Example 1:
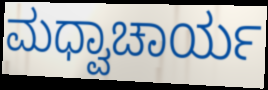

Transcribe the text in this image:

ಮಧ್ವಾಚಾರ್ಯ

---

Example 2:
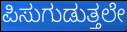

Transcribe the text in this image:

ಪಿಸುಗುಡುತ್ತಲೇ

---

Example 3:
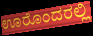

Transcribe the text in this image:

ಊರೊಂದರಲ್ಲಿ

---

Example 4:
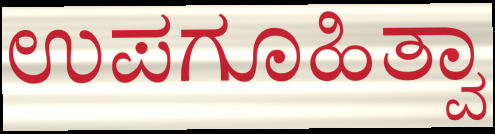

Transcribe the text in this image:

ಉಪಗೂಹಿತ್ವಾ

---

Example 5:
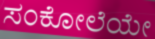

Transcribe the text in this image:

ಸಂಕೋಲೆಯೇ